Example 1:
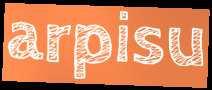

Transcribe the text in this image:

arpisu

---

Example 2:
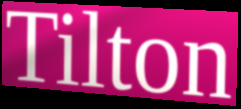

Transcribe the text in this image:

Tilton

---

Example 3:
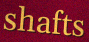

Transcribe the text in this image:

shafts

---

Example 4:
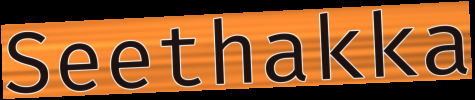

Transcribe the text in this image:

Seethakka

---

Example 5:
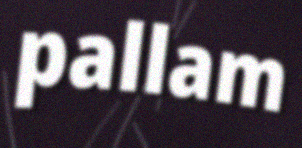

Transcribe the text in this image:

pallam